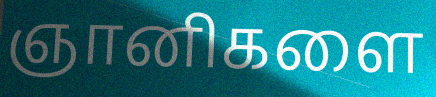
ஞானிகளை